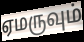
ஏமருவும்